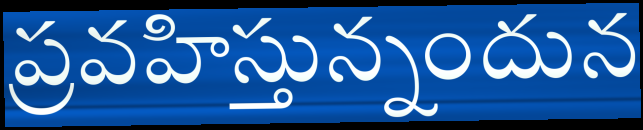
ప్రవహిస్తున్నందున